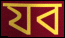
যব